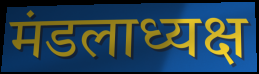
मंडलाध्यक्ष